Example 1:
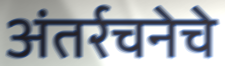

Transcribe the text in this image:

अंतर्रचनेचे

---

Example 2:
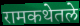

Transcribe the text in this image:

रामकथेतले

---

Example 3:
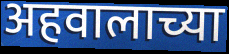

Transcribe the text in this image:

अहवालाच्या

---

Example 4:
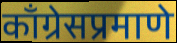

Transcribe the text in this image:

काँग्रेसप्रमाणे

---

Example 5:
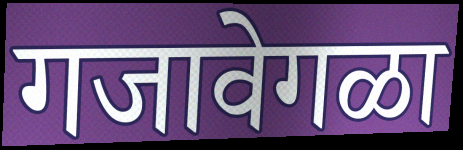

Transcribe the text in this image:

गजावेगळा